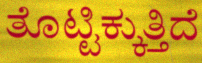
ತೊಟ್ಟಿಕ್ಕುತ್ತಿದೆ